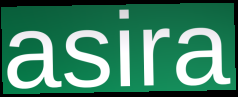
asira